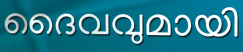
ദൈവവുമായി